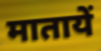
मातायें